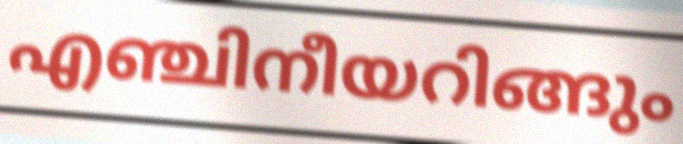
എഞ്ചിനീയറിങ്ങും